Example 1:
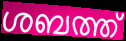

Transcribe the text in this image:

ശബത്ത്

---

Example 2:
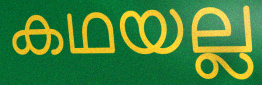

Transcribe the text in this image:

കഥയല്ല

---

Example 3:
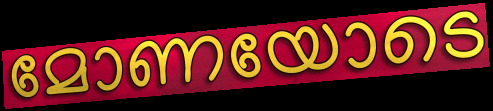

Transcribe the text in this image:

മോണയോടെ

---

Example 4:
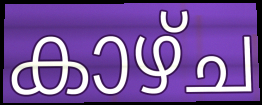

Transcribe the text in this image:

കാഴ്ച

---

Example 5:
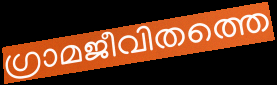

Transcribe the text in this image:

ഗ്രാമജീവിതത്തെ